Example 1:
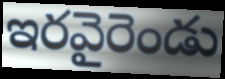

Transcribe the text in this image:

ఇరవైరెండు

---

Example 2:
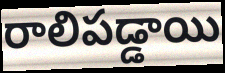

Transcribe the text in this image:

రాలిపడ్డాయి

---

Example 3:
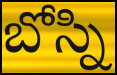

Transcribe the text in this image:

బోస్ని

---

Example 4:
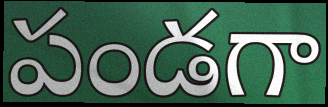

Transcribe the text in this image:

పండగా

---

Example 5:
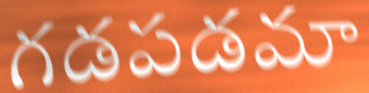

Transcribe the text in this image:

గడపడమా